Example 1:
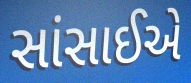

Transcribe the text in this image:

સાંસાઈએ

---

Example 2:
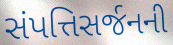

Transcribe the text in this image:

સંપત્તિસર્જનની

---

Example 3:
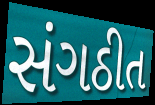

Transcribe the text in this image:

સંગઠીત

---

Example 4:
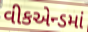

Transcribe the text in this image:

વીકએન્ડમાં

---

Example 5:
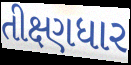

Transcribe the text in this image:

તીક્ષ્ણધાર